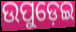
ଉପୁଡ଼େଇ